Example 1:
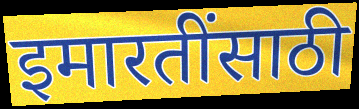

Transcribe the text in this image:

इमारतींसाठी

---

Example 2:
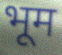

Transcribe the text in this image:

भूम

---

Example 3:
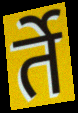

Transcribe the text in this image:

र्ते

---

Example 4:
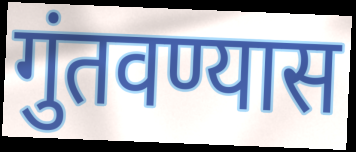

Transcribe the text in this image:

गुंतवण्यास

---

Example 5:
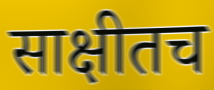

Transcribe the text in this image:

साक्षीतच